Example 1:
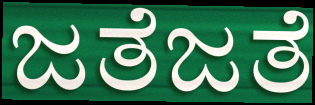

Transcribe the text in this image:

ಜತೆಜತೆ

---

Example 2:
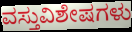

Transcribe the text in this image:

ವಸ್ತುವಿಶೇಷಗಳು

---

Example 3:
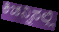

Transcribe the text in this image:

ಕಿಚನ್ನಿನಲ್ಲಿ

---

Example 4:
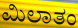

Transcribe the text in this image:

ಮಿಲಾತಂ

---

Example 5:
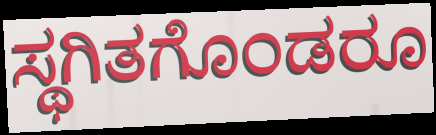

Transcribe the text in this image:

ಸ್ಥಗಿತಗೊಂಡರೂ